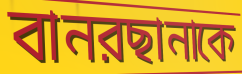
বানরছানাকে